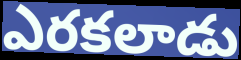
ఎరకలాడు